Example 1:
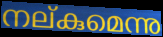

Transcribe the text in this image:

നല്‌കുമെന്നു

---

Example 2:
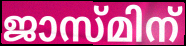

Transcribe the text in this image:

ജാസ്മിന്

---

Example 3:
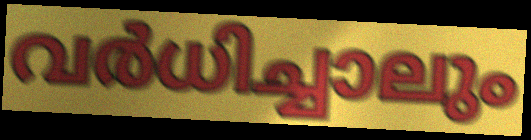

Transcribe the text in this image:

വർധിച്ചാലും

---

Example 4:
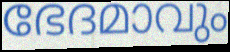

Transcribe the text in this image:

ഭേദമാവും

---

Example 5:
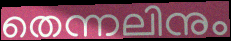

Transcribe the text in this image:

തെന്നലിനും